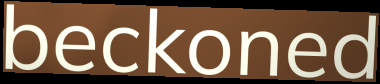
beckoned